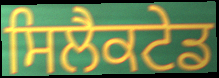
ਸਿਲੈਕਟੇਡ